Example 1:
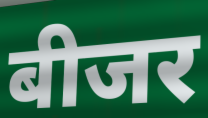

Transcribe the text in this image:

बीजर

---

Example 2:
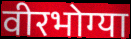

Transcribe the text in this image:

वीरभोग्या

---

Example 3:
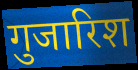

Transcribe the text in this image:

गुजारिश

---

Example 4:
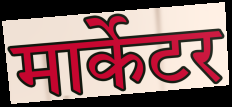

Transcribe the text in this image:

मार्केटर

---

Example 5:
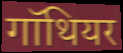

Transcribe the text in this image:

गॉथियर